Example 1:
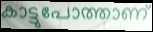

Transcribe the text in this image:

കാട്ടുപോത്താണ്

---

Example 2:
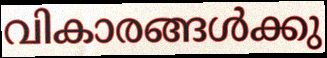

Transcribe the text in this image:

വികാരങ്ങൾക്കു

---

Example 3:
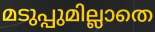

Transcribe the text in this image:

മടുപ്പുമില്ലാതെ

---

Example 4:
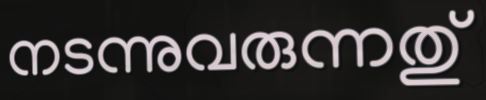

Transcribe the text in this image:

നടന്നുവരുന്നതു്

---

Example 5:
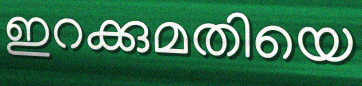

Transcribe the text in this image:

ഇറക്കുമതിയെ